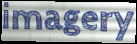
imagery